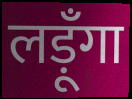
लड़ूँगा